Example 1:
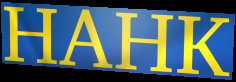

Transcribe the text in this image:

HAHK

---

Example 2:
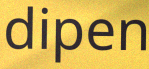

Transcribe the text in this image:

dipen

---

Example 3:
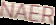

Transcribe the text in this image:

NAER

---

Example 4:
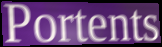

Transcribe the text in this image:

Portents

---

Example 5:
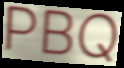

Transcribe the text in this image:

PBQ